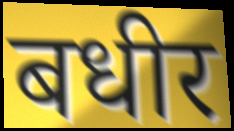
बधीर